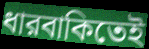
ধারবাকিতেই